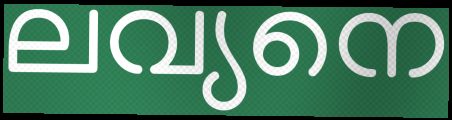
ലവ്യനെ